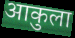
आकुला